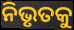
ନିଭୃତକୁ